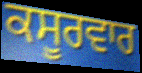
ਕਸੂਰਵਾਰ